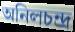
অনিলচন্দ্র